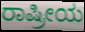
ರಾಷ್ರೀಯ